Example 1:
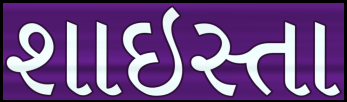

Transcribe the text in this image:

શાઇસ્તા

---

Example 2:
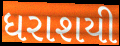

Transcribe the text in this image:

ધરાશયી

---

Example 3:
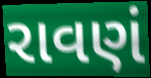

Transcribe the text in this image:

રાવણં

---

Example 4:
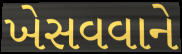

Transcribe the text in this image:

ખેસવવાને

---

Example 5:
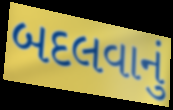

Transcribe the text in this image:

બદલવાનું